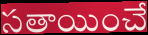
సతాయించే